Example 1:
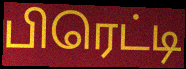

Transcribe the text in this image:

பிரெட்டி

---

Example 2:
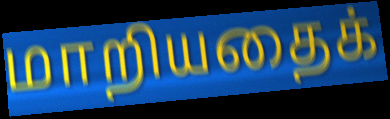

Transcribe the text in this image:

மாறியதைக்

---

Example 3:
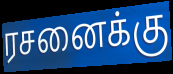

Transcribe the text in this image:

ரசனைக்கு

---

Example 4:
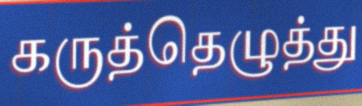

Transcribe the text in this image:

கருத்தெழுத்து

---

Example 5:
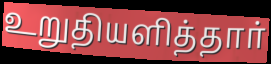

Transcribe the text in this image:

உறுதியளித்தார்